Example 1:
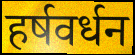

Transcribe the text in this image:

हर्षवर्धन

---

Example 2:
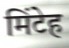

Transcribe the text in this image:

मिंटेह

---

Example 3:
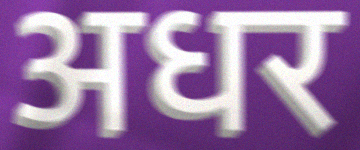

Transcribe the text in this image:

अधर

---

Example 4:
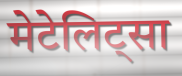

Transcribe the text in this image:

मेटेलिट्सा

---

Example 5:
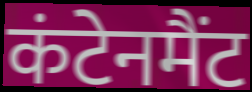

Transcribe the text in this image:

कंटेनमैंट